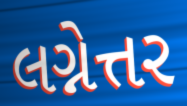
લગ્નેત્તર